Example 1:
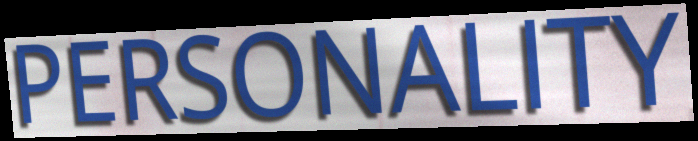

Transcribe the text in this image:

PERSONALITY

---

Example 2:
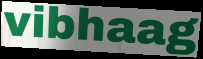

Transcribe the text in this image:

vibhaag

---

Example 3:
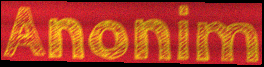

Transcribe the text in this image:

Anonim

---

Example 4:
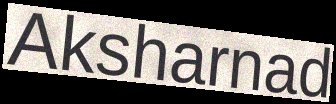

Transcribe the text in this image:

Aksharnad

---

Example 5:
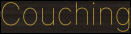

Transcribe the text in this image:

Couching